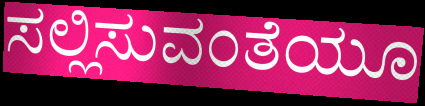
ಸಲ್ಲಿಸುವಂತೆಯೂ